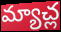
మ్యాచ్ల